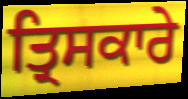
ਤ੍ਰਿਸਕਾਰੇ